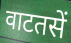
वाटतसें